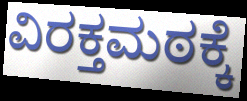
ವಿರಕ್ತಮಠಕ್ಕೆ